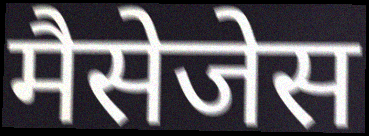
मैसेजेस